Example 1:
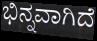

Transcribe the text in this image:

ಭಿನ್ನವಾಗಿದೆ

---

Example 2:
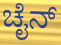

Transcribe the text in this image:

ಚೈನ್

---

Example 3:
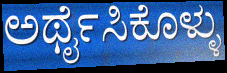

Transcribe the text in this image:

ಅರ್ಥೈಸಿಕೊಳ್ಳು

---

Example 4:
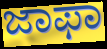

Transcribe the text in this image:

ಜಾಫಾ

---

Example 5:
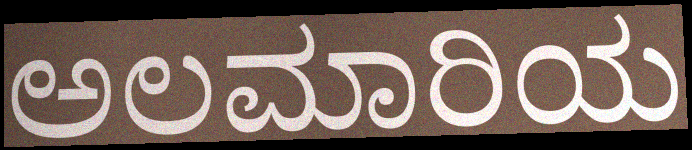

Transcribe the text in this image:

ಅಲಮಾರಿಯ